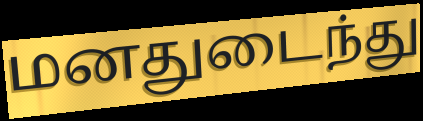
மனதுடைந்து